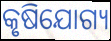
କୃଷିଯୋଗ୍ୟ